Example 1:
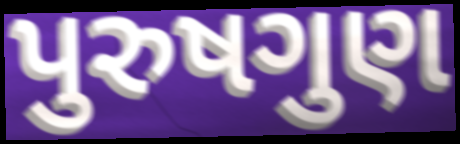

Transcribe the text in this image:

પુરુષગુણ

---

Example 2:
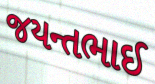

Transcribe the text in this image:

જયન્તભાઈ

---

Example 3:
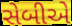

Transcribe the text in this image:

સેબીએ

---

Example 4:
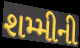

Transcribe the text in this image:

શમ્મીની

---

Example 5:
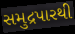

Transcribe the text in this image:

સમુદ્રપારથી